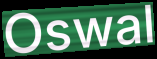
Oswal